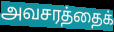
அவசரத்தைக்